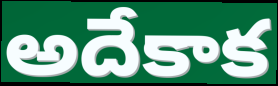
అదేకాక